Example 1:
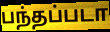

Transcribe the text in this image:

பந்தப்படா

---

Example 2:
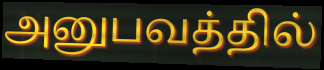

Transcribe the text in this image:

அனுபவத்தில்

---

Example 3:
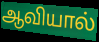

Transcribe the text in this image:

ஆவியால்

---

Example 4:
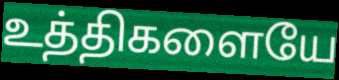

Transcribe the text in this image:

உத்திகளையே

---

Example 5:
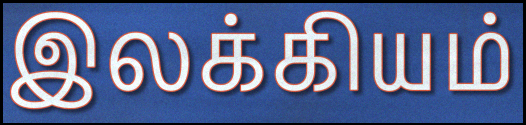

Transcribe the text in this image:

இலக்கியம்